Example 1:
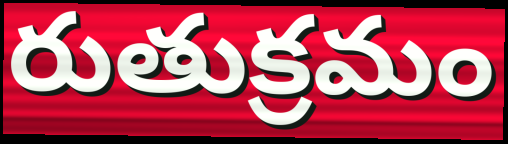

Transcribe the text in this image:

రుతుక్రమం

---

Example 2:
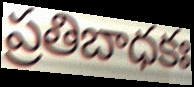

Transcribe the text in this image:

ప్రతిబాధకః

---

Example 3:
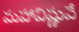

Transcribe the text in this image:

మహావిష్ణువే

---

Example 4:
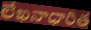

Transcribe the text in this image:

లేఖనాధారిత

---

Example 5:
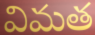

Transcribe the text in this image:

విమత